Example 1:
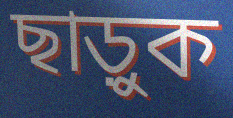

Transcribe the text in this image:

ছাড়ুক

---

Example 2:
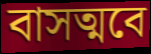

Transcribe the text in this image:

বাসত্মবে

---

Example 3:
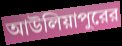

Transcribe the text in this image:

আউলিয়াপুরের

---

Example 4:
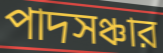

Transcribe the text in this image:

পাদসঞ্চার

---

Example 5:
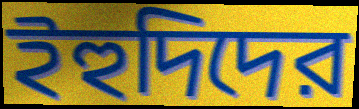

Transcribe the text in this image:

ইহুদিদের